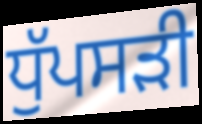
ਧੁੱਪਸੜੀ